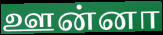
ஊன்னா